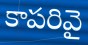
కాపరివై